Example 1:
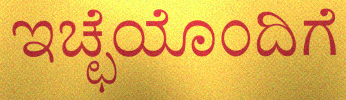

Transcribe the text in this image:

ಇಚ್ಛೆಯೊಂದಿಗೆ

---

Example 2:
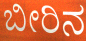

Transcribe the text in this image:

ಬೀರಿನ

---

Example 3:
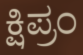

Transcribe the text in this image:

ಕ್ಷಿಪ್ರಂ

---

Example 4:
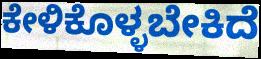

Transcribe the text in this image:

ಕೇಳಿಕೊಳ್ಳಬೇಕಿದೆ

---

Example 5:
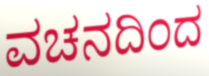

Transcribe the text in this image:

ವಚನದಿಂದ